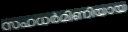
സഹധർമിണിയായ